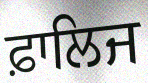
ਫ਼ਾਲਿਜ